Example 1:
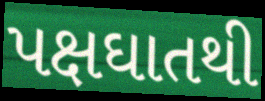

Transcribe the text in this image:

પક્ષઘાતથી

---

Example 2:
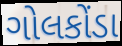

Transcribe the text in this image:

ગોલકોંડા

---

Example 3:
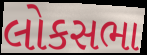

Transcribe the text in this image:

લોકસભા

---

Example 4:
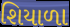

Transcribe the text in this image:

શિયાળા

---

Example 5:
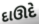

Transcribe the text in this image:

દાઊદે